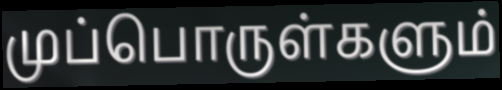
முப்பொருள்களும்